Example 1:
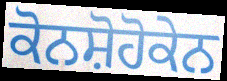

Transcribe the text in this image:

ਕੋਨਸ਼ੋਹੋਕੇਨ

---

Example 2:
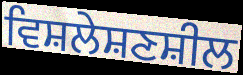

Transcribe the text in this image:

ਵਿਸ਼ਲੇਸ਼ਣਸ਼ੀਲ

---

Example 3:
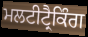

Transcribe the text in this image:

ਮਲਟੀਟ੍ਰੈਕਿੰਗ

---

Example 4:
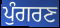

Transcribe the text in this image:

ਪੁੰਗਰਣ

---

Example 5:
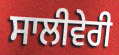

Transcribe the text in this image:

ਸਾਲੀਵੇਰੀ